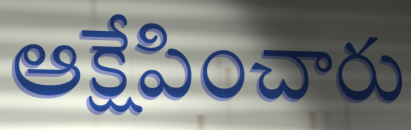
ఆక్షేపించారు